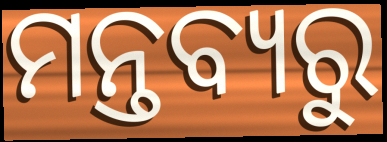
ମନ୍ତବ୍ୟରୁ